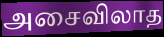
அசைவிலாத